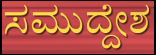
ಸಮುದ್ದೇಶ